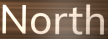
North